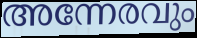
അന്നേരവും